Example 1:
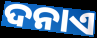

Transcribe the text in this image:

ଦନାଏ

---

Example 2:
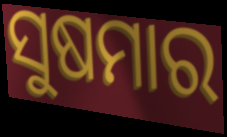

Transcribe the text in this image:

ସୁଷମାର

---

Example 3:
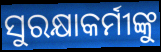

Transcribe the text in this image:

ସୁରକ୍ଷାକର୍ମୀଙ୍କୁ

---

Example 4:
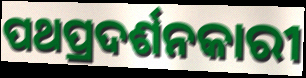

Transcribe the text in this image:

ପଥପ୍ରଦର୍ଶନକାରୀ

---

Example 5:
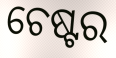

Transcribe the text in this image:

ଚେଷ୍ଟର